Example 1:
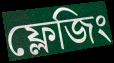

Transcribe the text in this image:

ফ্লেজিং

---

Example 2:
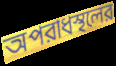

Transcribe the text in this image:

অপরাধস্থলের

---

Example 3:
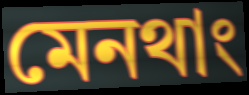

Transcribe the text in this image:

মেনথাং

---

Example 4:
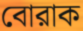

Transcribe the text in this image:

বোরাক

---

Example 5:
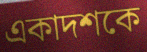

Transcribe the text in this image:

একাদশকে